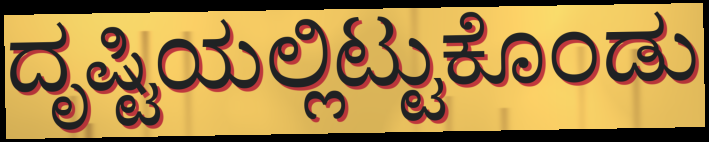
ದೃಷ್ಟಿಯಲ್ಲಿಟ್ಟುಕೊಂಡು